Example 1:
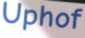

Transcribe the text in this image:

Uphof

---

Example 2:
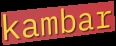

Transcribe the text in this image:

kambar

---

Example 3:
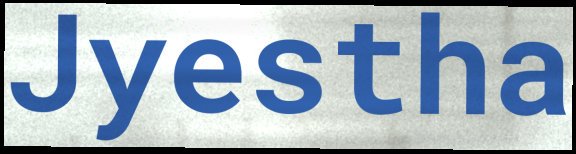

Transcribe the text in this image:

Jyestha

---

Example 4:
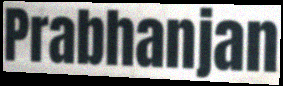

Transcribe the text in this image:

Prabhanjan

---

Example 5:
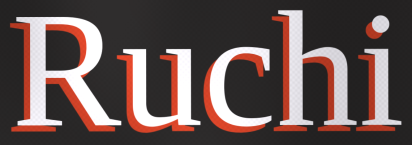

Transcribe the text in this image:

Ruchi